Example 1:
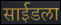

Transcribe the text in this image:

साईडला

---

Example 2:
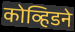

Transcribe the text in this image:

कोव्हिडने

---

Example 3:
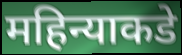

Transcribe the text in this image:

महिन्याकडे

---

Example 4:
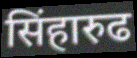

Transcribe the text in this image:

सिंहारुढ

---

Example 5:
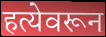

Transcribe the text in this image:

हत्येवरून